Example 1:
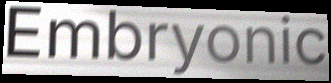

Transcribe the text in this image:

Embryonic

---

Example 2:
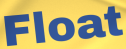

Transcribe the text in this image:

Float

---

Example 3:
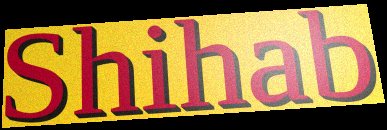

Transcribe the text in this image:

Shihab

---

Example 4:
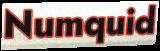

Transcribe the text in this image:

Numquid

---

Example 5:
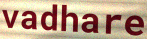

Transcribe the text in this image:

vadhare